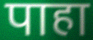
पाहा